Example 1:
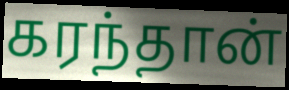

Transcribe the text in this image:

கரந்தான்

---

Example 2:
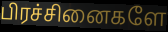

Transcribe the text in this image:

பிரச்சினைகளே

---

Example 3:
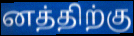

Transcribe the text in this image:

னத்திற்கு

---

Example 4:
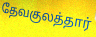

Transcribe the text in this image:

தேவகுலத்தார்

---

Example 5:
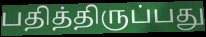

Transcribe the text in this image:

பதித்திருப்பது